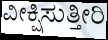
ವೀಕ್ಷಿಸುತ್ತೀರಿ